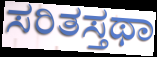
ಸರಿತಸ್ತಥಾ